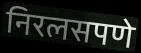
निरलसपणे